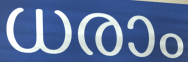
ധരാം